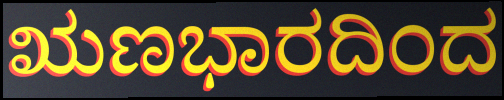
ಋಣಭಾರದಿಂದ